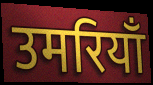
उमरियाँ